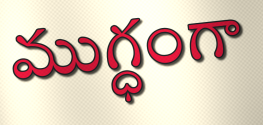
ముగ్ధంగా